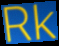
Rk